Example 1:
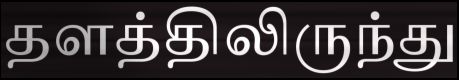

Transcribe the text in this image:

தளத்திலிருந்து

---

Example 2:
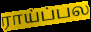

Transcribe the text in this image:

ராய்ப்பல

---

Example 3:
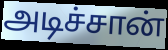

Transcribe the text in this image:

அடிச்சான்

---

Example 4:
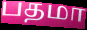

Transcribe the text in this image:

பதமா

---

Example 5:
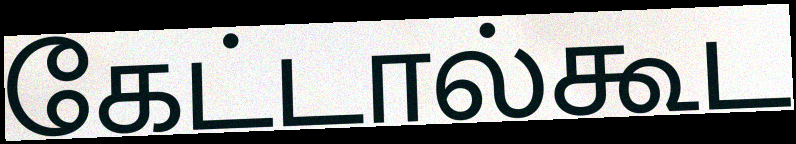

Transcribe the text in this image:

கேட்டால்கூட